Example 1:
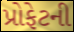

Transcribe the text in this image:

પ્રોફેટની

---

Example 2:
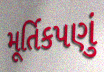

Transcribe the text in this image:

મૂર્તિકપણું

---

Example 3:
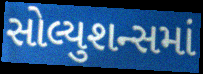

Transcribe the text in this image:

સોલ્યુશન્સમાં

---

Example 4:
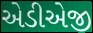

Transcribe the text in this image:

એડીએજી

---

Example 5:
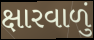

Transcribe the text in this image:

ક્ષારવાળું